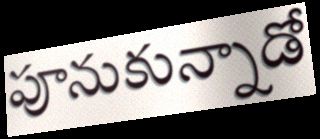
పూనుకున్నాడో